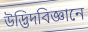
উদ্ভিদবিজ্ঞানে